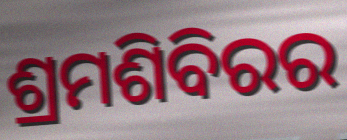
ଶ୍ରମଶିବିରର